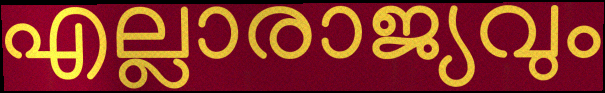
എല്ലാരാജ്യവും